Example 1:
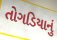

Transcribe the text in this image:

તોગડિયાનું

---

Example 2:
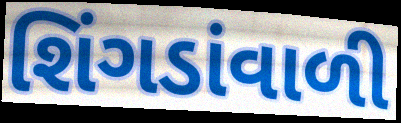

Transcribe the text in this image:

શિંગડાંવાળી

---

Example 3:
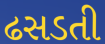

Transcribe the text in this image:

ઢસડતી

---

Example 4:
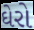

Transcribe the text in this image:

ઘેરો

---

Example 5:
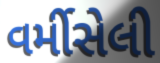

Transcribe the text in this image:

વર્મીસેલી